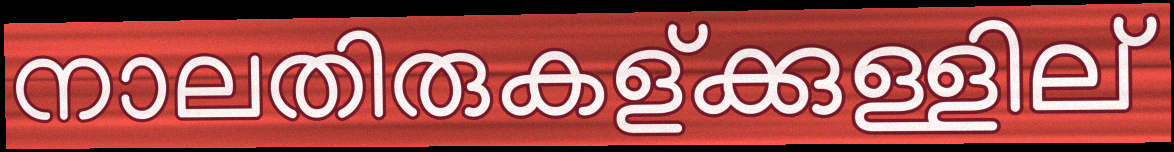
നാലതിരുകള്ക്കുള്ളില്